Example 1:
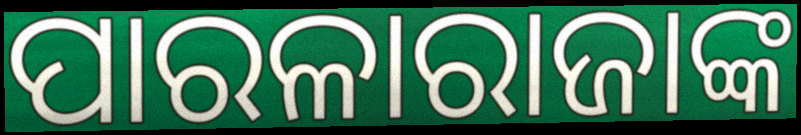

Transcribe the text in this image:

ପାରଳାରାଜାଙ୍କ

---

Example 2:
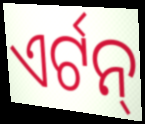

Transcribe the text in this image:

ଏର୍ଟନ୍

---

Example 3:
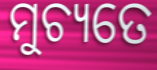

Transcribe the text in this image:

ମୁଚ୍ୟତେ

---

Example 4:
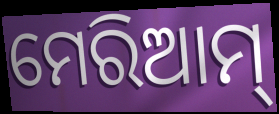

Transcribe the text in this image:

ମେରିଆମ୍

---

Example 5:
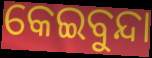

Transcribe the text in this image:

କେଇବୁନ୍ଦା